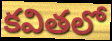
కవితలో